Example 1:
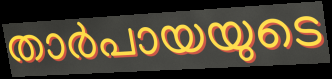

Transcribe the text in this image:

താർപായയുടെ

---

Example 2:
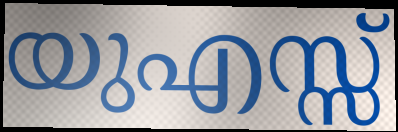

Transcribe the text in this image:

യുഎസ്സ്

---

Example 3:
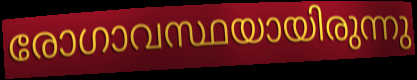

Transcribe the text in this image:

രോഗാവസ്ഥയായിരുന്നു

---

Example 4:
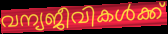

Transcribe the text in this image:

വന്യജീവികൾക്ക്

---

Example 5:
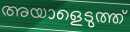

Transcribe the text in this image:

അയാളെടുത്ത്